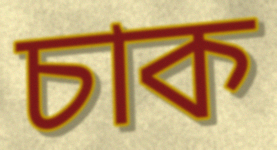
চাক